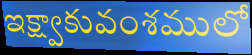
ఇక్ష్వాకువంశములో